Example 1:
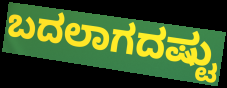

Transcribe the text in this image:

ಬದಲಾಗದಷ್ಟು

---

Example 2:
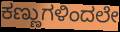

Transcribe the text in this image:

ಕಣ್ಣುಗಳಿಂದಲೇ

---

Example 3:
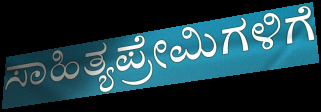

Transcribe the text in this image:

ಸಾಹಿತ್ಯಪ್ರೇಮಿಗಳಿಗೆ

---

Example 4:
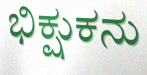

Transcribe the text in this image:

ಭಿಕ್ಷುಕನು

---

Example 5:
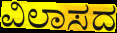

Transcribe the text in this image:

ವಿಲಾಸದ